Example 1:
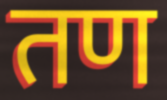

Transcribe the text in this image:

तण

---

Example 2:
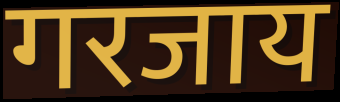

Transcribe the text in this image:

गरजाय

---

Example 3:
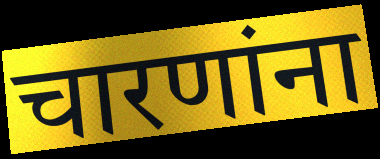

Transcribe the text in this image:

चारणांना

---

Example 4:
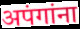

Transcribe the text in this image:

अपंगांना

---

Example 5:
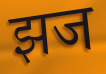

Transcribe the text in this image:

झज